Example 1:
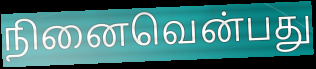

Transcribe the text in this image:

நினைவென்பது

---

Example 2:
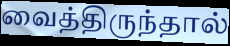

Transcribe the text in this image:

வைத்திருந்தால்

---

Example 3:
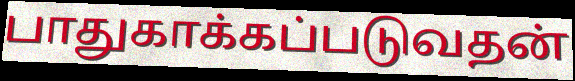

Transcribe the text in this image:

பாதுகாக்கப்படுவதன்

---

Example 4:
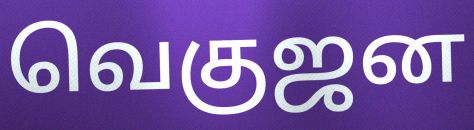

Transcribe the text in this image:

வெகுஜன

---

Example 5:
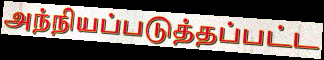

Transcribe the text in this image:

அந்நியப்படுத்தப்பட்ட